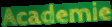
Academie